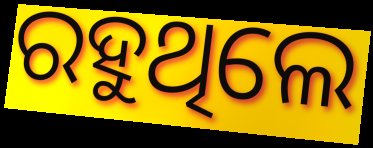
ରହୁଥିଲେ